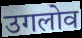
उगलोव